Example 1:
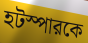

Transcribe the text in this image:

হটস্পারকে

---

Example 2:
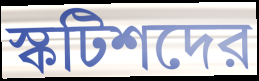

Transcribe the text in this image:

স্কটিশদের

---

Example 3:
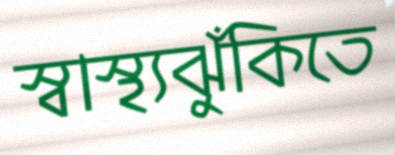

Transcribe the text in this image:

স্বাস্থ্যঝুঁকিতে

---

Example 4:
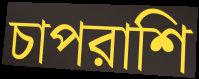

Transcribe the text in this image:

চাপরাশি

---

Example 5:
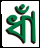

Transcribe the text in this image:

ধাঁ